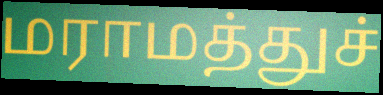
மராமத்துச்